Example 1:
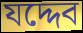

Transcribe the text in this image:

যদ্দেব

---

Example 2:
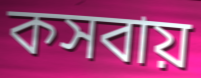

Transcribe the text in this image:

কসবায়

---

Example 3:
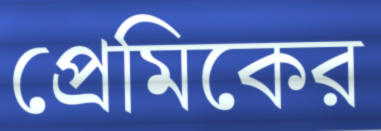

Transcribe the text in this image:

প্রেমিকের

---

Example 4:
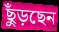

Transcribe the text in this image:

ছুঁড়ছেন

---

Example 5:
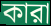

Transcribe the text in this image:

কারা